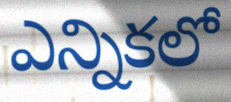
ఎన్నికలో